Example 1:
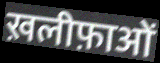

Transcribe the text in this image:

ख़लीफ़ाओं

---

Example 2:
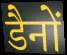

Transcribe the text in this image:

डैनों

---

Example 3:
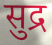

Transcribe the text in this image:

सुद्र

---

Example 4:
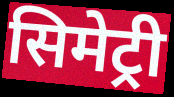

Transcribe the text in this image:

सिमेट्री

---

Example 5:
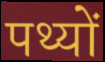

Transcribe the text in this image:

पथ्यों